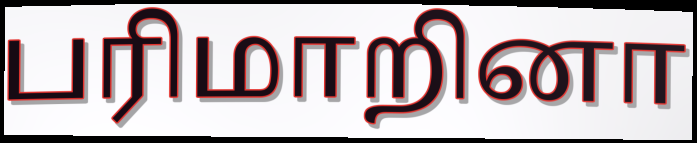
பரிமாறினா